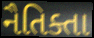
નૈતિક્તા